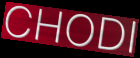
CHODI